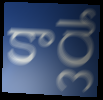
కార్లే